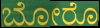
ಬೋರೊ